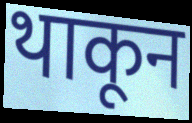
थाकून